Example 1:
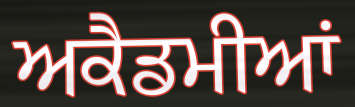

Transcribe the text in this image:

ਅਕੈਡਮੀਆਂ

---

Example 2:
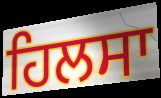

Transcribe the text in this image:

ਹਿਲਸਾ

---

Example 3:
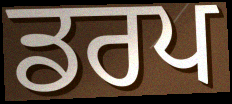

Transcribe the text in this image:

ਡਰਪ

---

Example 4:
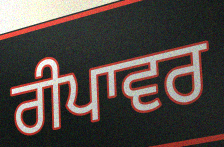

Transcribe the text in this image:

ਰੀਪਾਵਰ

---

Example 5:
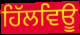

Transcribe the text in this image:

ਹਿੱਲਵਿਊ